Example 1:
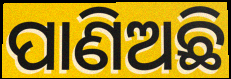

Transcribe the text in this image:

ପାଣିଅଛି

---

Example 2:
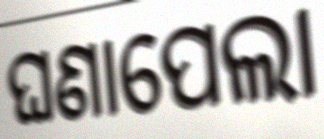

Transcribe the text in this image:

ଘଣାପେଲା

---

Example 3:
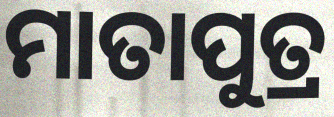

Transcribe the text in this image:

ମାତାପୁତ୍ର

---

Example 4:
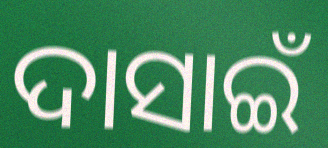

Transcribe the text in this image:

ଦାସାଇଁ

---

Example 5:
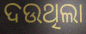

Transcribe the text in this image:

ଦଉଥିଲା